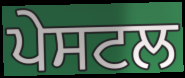
ਪੇਸਟਲ